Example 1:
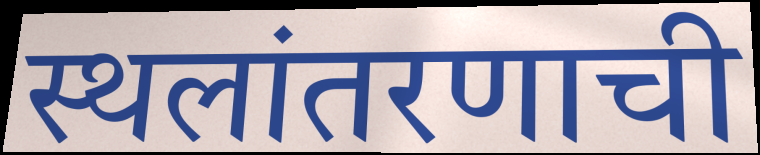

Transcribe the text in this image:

स्थलांतरणाची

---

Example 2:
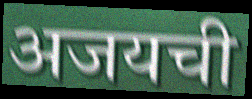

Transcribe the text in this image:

अजयची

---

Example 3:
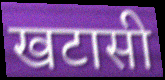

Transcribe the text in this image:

खटासी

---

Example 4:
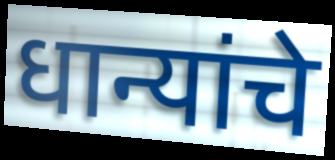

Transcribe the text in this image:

धान्यांचे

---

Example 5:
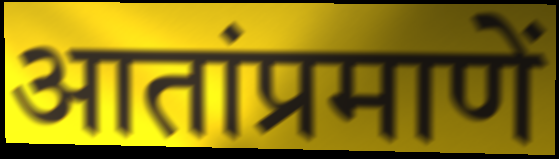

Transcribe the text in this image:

आतांप्रमाणें